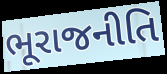
ભૂરાજનીતિ